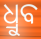
ଧ୍ରୁବ